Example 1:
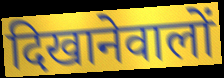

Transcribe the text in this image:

दिखानेवालों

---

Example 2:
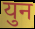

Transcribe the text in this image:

युन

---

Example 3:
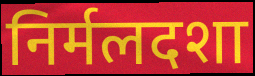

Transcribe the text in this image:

निर्मलदशा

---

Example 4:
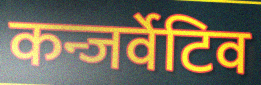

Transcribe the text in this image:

कन्जर्वेटिव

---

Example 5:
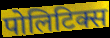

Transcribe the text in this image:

पोलिटिक्स